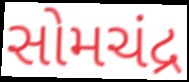
સોમચંદ્ર